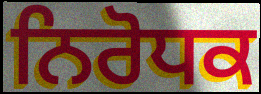
ਨਿਰੋਧਕ